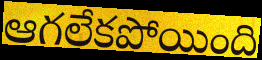
ఆగలేకపోయింది